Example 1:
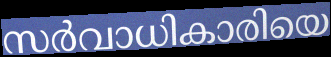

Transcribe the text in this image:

സർവാധികാരിയെ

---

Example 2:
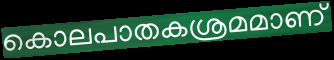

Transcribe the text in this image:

കൊലപാതകശ്രമമാണ്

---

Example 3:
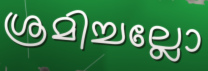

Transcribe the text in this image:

ശ്രമിച്ചല്ലോ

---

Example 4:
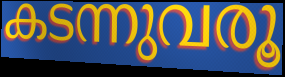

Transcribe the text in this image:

കടന്നുവരൂ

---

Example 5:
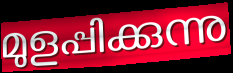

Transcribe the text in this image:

മുളപ്പിക്കുന്നു